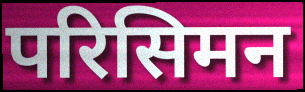
परिसिमन